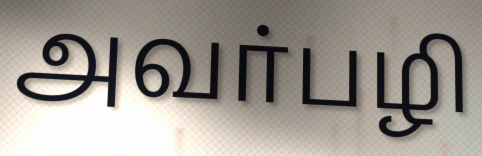
அவர்பழி